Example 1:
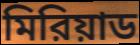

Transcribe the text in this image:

মিরিয়াড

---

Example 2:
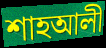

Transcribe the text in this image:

শাহআলী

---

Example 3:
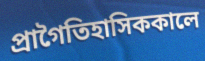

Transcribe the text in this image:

প্রাগৈতিহাসিককালে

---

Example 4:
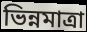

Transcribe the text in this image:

ভিন্নমাত্রা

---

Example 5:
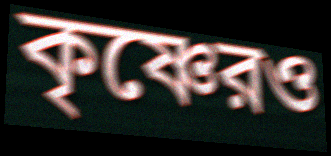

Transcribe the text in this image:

কৃষ্ণেরও